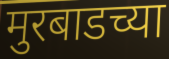
मुरबाडच्या